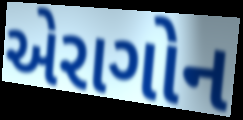
એરાગોન